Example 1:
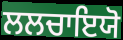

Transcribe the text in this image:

ਲਲਚਾਇਯੋ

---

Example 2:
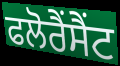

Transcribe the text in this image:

ਫਲੋਰੈਂਸੈਂਟ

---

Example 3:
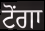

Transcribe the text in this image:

ਟੋਂਗਾ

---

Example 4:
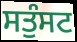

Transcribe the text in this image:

ਸਤੁੰਸਟ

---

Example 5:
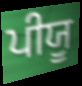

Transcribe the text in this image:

ਪੀਯੂ